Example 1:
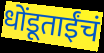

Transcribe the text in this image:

धोंडूताईंचं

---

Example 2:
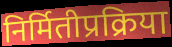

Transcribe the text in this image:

निर्मितीप्रक्रिया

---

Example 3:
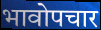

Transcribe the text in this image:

भावोपचार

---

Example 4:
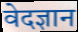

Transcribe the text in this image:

वेदज्ञान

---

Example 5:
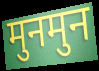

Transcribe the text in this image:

मुनमुन